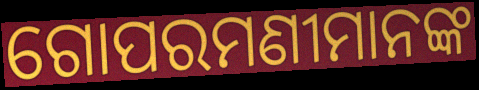
ଗୋପରମଣୀମାନଙ୍କ